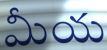
మీయ